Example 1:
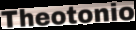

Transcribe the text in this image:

Theotonio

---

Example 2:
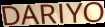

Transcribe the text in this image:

DARIYO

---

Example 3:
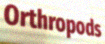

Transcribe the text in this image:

Orthropods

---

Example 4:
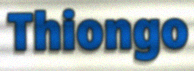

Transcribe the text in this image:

Thiongo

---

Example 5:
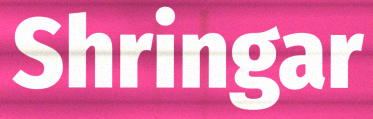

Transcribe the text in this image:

Shringar